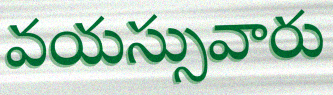
వయస్సువారు